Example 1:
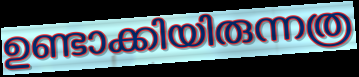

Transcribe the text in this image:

ഉണ്ടാക്കിയിരുന്നത്ര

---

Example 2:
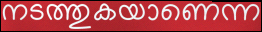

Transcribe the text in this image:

നടത്തുകയാണെന്ന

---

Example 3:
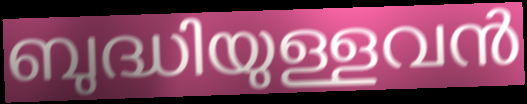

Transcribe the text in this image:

ബുദ്ധിയുള്ളവൻ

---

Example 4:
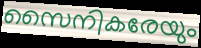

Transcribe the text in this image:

സൈനികരേയും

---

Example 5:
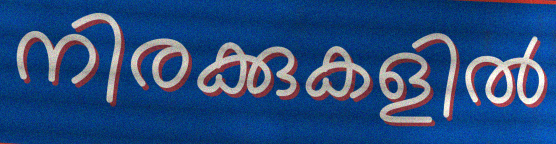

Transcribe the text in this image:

നിരക്കുകളിൽ